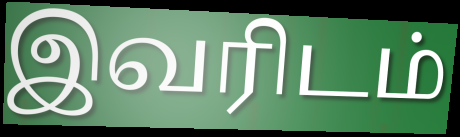
இவரிடம்